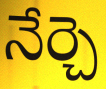
నేర్చె